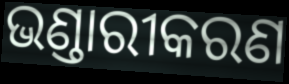
ଭଣ୍ଡାରୀକରଣ